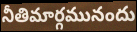
నీతిమార్గమునందు